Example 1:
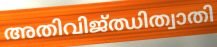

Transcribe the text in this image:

അതിവിജ്ഝിത്വാതി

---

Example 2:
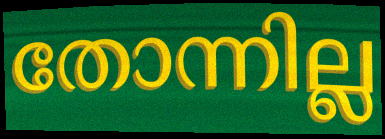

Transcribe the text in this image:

തോന്നില്ല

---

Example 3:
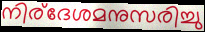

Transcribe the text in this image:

നിര്ദേശമനുസരിച്ചു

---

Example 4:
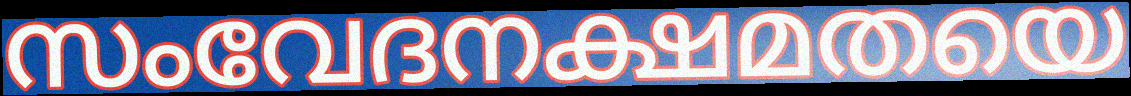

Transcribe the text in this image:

സംവേദനക്ഷമതയെ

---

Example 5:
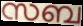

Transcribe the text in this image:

സബ